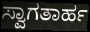
ಸ್ವಾಗತಾರ್ಹ